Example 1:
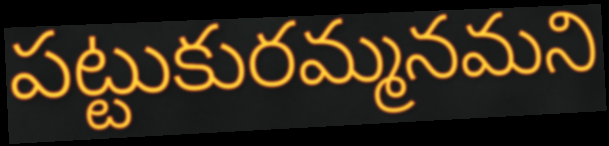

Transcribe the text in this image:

పట్టుకురమ్మనమని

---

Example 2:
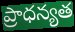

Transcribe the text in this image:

ప్రాధన్యత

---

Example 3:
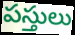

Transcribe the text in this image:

పస్తులు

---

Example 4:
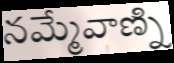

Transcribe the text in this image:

నమ్మేవాణ్ని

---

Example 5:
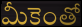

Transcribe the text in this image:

మీకెంతో